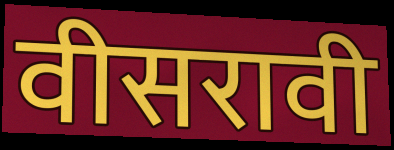
वीसरावी